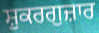
ਸ਼ੁਕਰਗੁਜ਼ਾਰ